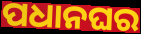
ପଧାନଘର